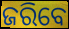
ଜରିବେ